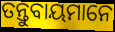
ତନ୍ତୁବାୟମାନେ